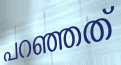
പറഞ്ഞത്